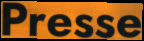
Presse